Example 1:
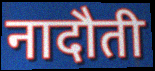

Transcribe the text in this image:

नादौती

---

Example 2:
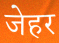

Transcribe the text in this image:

जेहर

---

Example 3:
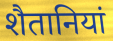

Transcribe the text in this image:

शैतानियां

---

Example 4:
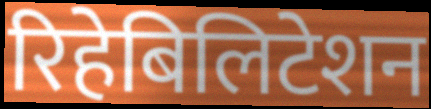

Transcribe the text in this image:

रिहेबिलिटेशन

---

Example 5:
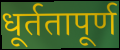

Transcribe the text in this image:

धूर्ततापूर्ण